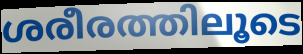
ശരീരത്തിലൂടെ